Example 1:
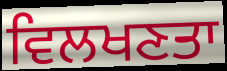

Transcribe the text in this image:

ਵਿਲਖਣਤਾ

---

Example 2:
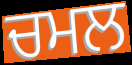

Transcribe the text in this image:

ਚਮਲ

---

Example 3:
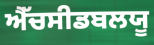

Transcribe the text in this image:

ਐੱਚਸੀਡਬਲਯੂ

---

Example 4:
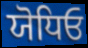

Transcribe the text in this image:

ਯੋਧਿਓ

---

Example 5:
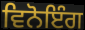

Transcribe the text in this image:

ਵਿਨੋਇੰਗ